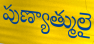
పుణ్యాత్ములై